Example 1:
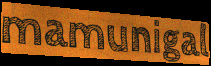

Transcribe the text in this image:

mamunigal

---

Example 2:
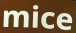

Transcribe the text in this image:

mice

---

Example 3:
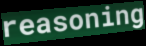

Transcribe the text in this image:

reasoning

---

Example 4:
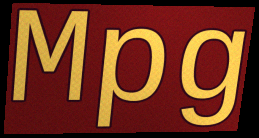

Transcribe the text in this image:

Mpg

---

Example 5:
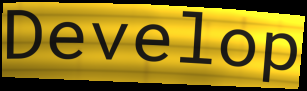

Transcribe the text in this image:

Develop